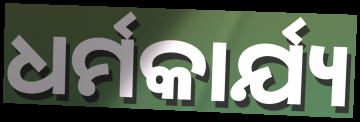
ଧର୍ମକାର୍ଯ୍ୟ